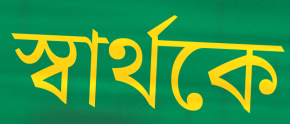
স্বার্থকে